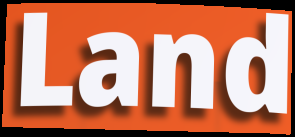
Land